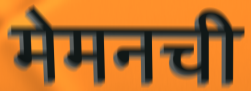
मेमनची